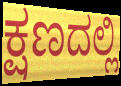
ಕ್ಷಣದಲ್ಲಿ